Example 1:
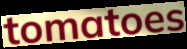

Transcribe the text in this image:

tomatoes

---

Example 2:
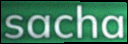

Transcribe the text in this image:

sacha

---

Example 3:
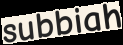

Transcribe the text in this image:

subbiah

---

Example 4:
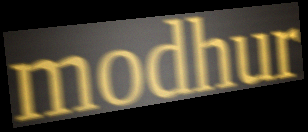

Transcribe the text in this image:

modhur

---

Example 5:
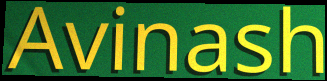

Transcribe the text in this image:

Avinash